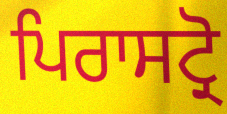
ਪਿਰਾਸਟ੍ਰੋ